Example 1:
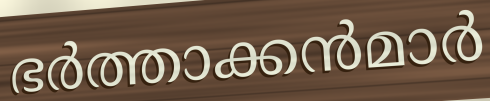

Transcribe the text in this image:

ഭർത്താക്കൻമാർ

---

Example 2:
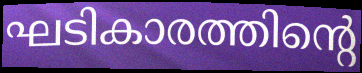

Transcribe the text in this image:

ഘടികാരത്തിന്റെ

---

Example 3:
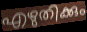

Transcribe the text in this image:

എഴുതിക്കും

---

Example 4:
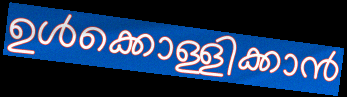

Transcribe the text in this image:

ഉൾക്കൊള്ളിക്കാൻ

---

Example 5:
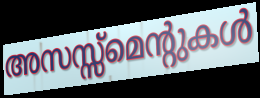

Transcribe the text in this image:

അസസ്സ്മെന്റുകൾ